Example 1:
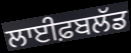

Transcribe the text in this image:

ਲਾਈਫ਼ਬਲੱਡ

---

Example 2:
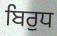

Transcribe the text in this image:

ਬਿਰੁਧ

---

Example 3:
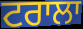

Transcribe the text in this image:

ਟਰਾਲਾ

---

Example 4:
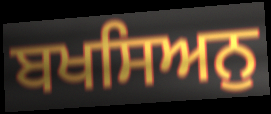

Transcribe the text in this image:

ਬਖਸਿਅਨੁ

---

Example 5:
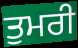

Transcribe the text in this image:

ਤੁਮਰੀ